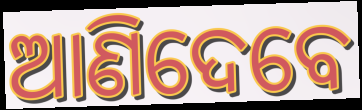
ଆଣିଦେବେ